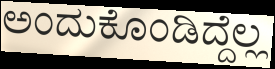
ಅಂದುಕೊಂಡಿದ್ದೆಲ್ಲ